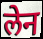
लेन